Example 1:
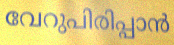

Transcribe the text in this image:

വേറുപിരിപ്പാൻ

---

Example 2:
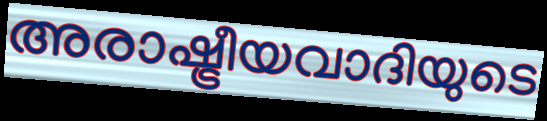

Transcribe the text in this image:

അരാഷ്ട്രീയവാദിയുടെ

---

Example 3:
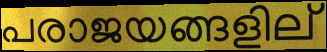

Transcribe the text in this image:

പരാജയങ്ങളില്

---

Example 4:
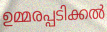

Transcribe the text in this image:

ഉമ്മരപ്പടിക്കൽ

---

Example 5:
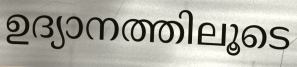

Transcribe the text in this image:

ഉദ്യാനത്തിലൂടെ